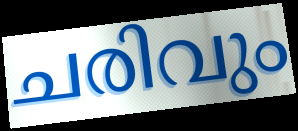
ചരിവും